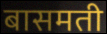
बासमती